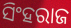
ସିଂହରାଜ